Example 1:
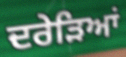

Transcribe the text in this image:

ਦਰੇੜਿਆਂ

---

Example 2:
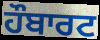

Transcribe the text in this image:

ਹੌਬਾਰਟ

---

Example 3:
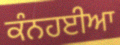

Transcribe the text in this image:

ਕੰਨਹਈਆ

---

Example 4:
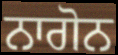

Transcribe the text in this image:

ਨਾਗੋਨ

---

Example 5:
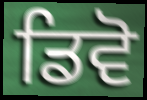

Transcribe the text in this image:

ਡਿਵੋ